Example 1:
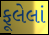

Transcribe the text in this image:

ફૂલેલાં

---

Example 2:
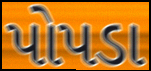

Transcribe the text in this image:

પોપડા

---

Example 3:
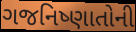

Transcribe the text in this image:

ગજનિષ્ણાતોની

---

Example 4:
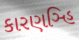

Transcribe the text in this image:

કારણઞ્હિ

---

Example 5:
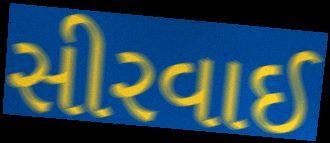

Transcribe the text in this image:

સીરવાઈ